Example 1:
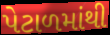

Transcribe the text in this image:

પેટાળમાંથી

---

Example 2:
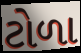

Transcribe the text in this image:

ટોળા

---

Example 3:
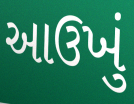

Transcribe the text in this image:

આઉખું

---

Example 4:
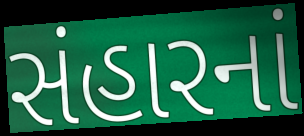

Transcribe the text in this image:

સંહારનાં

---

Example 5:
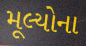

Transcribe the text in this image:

મૂલ્‍યોના